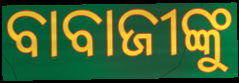
ବାବାଜୀଙ୍କୁ